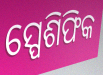
ସ୍ପେଶିଫିକ